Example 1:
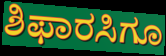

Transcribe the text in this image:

ಶಿಫಾರಸಿಗೂ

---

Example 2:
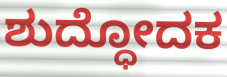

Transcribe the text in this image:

ಶುದ್ಧೋದಕ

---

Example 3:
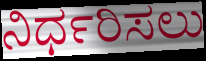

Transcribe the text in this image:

ನಿರ್ಧರಿಸಲು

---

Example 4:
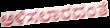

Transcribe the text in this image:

ಅಳಿಸಲಾರದಂತೆ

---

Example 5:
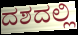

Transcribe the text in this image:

ದಶದಲ್ಲಿ